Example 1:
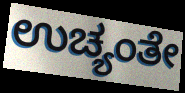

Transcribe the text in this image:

ಉಚ್ಯಂತೇ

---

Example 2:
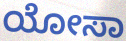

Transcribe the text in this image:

ಯೋಸಾ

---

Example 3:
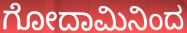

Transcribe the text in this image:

ಗೋದಾಮಿನಿಂದ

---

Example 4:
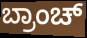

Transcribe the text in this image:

ಬ್ರಾಂಚ್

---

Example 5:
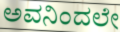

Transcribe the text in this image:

ಅವನಿಂದಲೇ